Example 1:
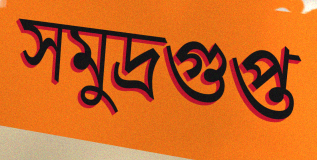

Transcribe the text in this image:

সমুদ্রগুপ্ত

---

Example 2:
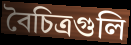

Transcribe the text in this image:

বৈচিত্রগুলি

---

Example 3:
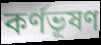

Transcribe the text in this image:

কর্ণভূষণ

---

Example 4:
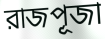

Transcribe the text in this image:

রাজপূজা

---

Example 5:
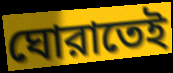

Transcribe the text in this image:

ঘোরাতেই